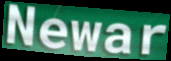
Newar